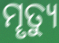
ମୄତ୍ୟୁ